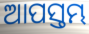
ଆପସ୍ତମ୍ଭ